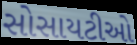
સોસાયટીઓ